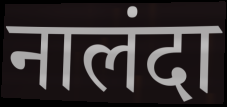
नालंदा